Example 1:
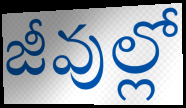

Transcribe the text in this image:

జీవుల్లో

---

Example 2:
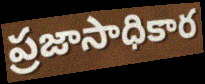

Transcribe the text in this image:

ప్రజాసాధికార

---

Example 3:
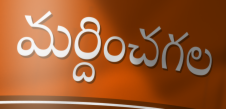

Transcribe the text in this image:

మర్దించగల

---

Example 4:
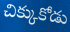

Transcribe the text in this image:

చిక్కుకోడు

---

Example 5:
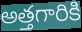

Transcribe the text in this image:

అత్తగారికి